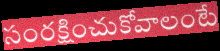
సంరక్షించుకోవాలంటే